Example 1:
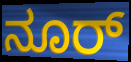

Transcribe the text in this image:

ನೂರ್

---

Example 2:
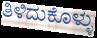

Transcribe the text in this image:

ತಿಳಿದುಕೊಳ್ಳು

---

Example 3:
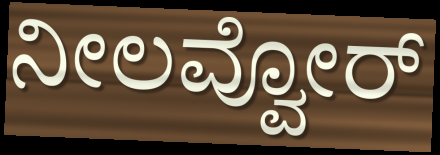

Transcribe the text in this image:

ನೀಲವ್ವೋರ್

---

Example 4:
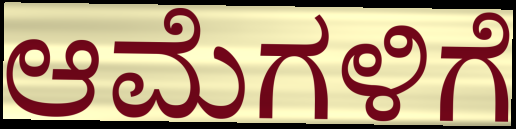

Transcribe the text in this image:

ಆಮೆಗಳಿಗೆ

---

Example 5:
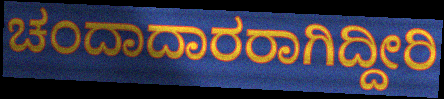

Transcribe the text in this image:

ಚಂದಾದಾರರಾಗಿದ್ದೀರಿ